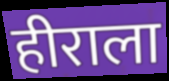
हीराला